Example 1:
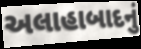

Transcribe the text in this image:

અલાહાબાદનું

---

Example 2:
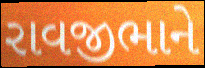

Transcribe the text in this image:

રાવજીભાને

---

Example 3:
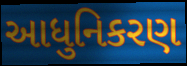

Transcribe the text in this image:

આધુનિકરણ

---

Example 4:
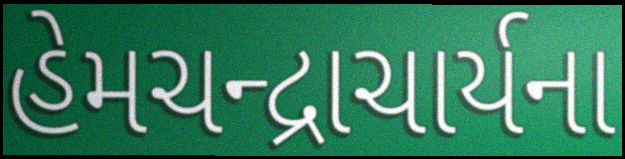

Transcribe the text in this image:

હેમચન્દ્રાચાર્યના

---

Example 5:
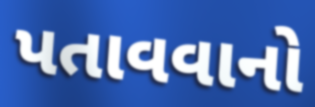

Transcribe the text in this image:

પતાવવાનો